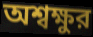
অশ্বক্ষুর